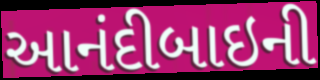
આનંદીબાઇની